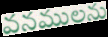
వనములను